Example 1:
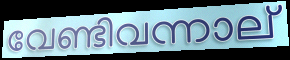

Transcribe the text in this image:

വേണ്ടിവന്നാല്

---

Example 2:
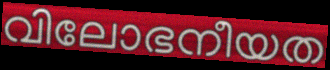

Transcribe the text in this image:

വിലോഭനീയത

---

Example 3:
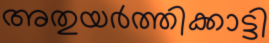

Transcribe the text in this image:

അതുയർത്തിക്കാട്ടി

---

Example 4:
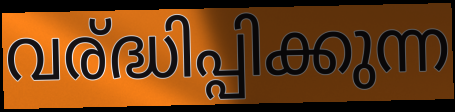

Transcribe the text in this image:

വര്ദ്ധിപ്പിക്കുന്ന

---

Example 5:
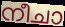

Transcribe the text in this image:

നീചാ